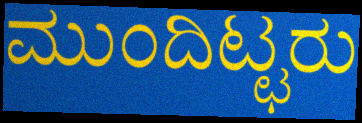
ಮುಂದಿಟ್ಟರು